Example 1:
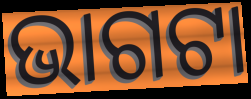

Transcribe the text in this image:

ଭାଗଟା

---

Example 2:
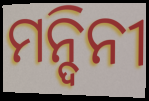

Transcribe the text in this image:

ମନ୍ଦିନୀ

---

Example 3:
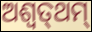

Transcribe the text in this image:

ଅଶ୍ୱତ୍‌ଥମ୍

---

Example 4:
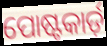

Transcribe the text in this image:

ପୋଷ୍ଟକାର୍ଡ଼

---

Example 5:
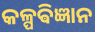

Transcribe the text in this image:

କଳ୍ପଵିଜ୍ଞାନ